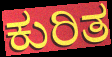
ಕುರಿತ